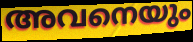
അവനെയും